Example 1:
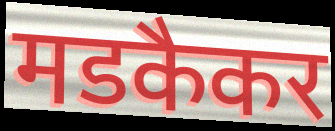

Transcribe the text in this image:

मडकैकर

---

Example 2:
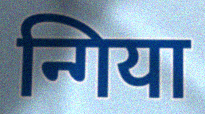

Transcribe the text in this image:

न्गिया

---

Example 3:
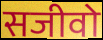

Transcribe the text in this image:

सजीवो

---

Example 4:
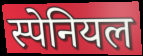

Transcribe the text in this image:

स्पेनियल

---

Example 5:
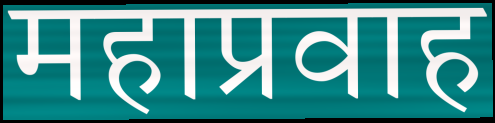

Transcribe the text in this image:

महाप्रवाह